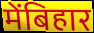
मेंबिहार